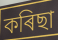
কৰিছা